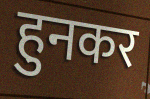
हुनकर